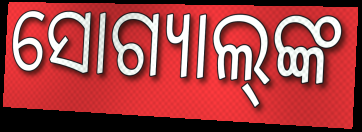
ସୋଗ୍ୟାଲ୍‌ଙ୍କ